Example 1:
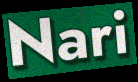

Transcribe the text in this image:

Nari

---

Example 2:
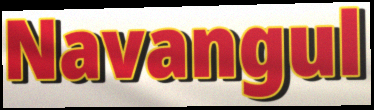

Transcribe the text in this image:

Navangul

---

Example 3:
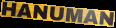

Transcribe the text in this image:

HANUMAN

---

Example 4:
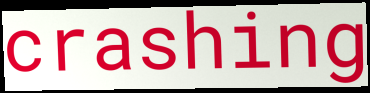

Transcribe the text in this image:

crashing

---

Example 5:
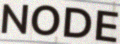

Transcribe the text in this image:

NODE